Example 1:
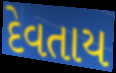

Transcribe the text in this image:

દેવતાય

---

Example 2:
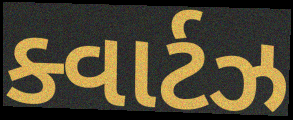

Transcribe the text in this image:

ક્વાર્ટઝ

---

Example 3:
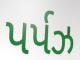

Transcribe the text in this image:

પર્પઝ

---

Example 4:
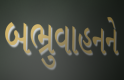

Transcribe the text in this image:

બભ્રુવાહનને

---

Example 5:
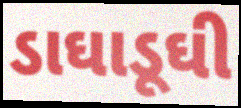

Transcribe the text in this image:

ડાઘાડૂઘી